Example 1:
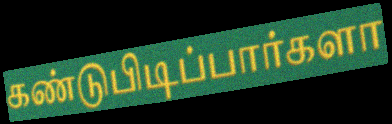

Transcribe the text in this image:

கண்டுபிடிப்பார்களா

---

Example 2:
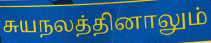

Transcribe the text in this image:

சுயநலத்தினாலும்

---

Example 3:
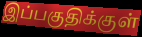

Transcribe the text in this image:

இப்பகுதிக்குள்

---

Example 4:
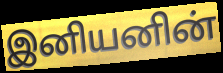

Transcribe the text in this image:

இனியனின்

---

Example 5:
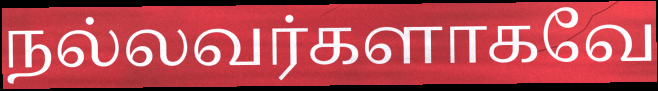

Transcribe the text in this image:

நல்லவர்களாகவே